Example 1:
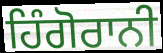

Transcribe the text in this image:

ਹਿੰਗੋਰਾਨੀ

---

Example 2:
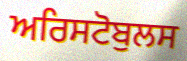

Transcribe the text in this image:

ਅਰਿਸਟੋਬੁਲਸ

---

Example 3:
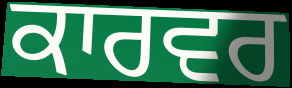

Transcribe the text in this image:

ਕਾਰਵਰ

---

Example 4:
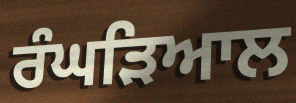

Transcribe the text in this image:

ਰੰਘੜਿਆਲ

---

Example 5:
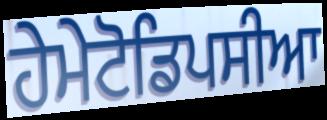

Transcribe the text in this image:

ਹੇਮੇਟੋਡਿਪਸੀਆ